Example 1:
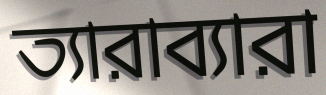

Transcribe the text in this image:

ত্যারাব্যারা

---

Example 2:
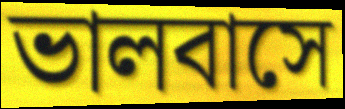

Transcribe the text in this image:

ভালবাসে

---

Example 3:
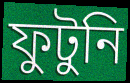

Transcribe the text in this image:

ফুটুনি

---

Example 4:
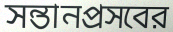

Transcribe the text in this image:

সন্তানপ্রসবের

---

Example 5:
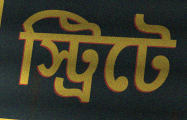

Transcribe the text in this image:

স্ট্রিটে